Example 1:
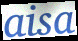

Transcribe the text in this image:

aisa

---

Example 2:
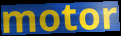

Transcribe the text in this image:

motor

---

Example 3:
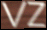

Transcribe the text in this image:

VZ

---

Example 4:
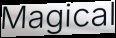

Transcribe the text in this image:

Magical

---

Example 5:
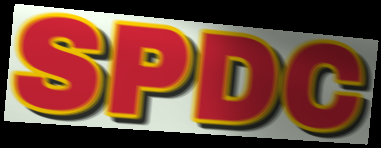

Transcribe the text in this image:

SPDC